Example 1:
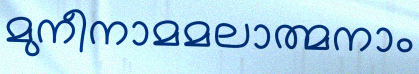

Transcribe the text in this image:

മുനീനാമമലാത്മനാം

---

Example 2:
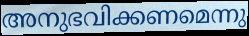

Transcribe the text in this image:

അനുഭവിക്കണമെന്നു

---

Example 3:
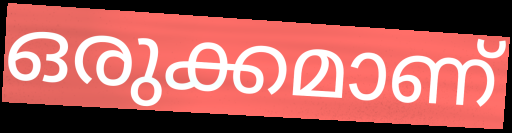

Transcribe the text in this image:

ഒരുക്കമാണ്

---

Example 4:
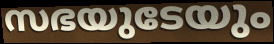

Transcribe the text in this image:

സഭയുടേയും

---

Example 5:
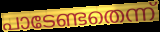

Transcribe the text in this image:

പാടേണ്ടതെന്ന്